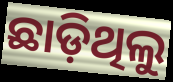
ଛାଡ଼ିଥିଲୁ